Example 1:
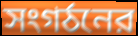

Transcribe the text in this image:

সংগঠনের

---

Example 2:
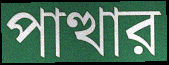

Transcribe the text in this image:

পাত্থার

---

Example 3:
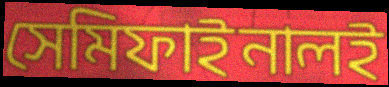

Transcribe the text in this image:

সেমিফাইনালই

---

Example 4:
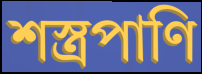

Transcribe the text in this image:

শস্ত্রপাণি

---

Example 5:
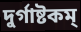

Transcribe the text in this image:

দুর্গাষ্টকম্